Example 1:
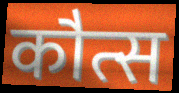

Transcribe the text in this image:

कौत्स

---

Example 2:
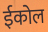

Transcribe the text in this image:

ईकोल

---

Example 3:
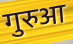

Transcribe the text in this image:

गुरुआ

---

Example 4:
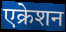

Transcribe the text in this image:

एक्रेशन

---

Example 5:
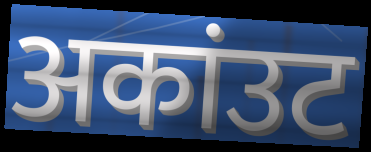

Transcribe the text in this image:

अकांउट